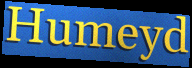
Humeyd